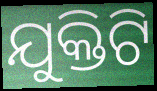
ଯୁକ୍ତିଟି